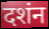
दशंन